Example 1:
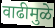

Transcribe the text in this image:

वाढीमुळे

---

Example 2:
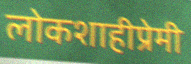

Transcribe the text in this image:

लोकशाहीप्रेमी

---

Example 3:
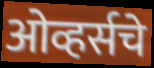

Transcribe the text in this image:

ओव्हर्सचे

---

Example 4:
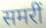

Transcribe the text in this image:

समरीं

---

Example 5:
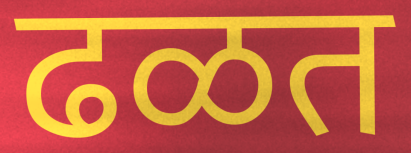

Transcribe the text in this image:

ढळत